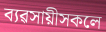
ব্যৱসায়ীসকলে